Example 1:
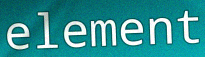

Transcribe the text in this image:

element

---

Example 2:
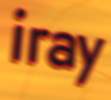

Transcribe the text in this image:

iray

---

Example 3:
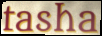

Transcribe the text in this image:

tasha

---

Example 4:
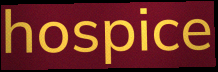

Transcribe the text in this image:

hospice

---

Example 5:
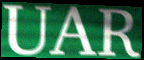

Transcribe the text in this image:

UAR